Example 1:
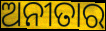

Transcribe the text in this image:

ଅନୀତାର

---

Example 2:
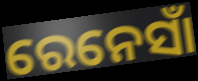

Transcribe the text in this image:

ରେନେସାଁ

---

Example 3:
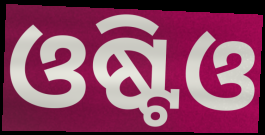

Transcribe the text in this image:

ଓଷ୍ଟିଓ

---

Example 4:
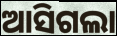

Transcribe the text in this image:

ଆସିଗଲା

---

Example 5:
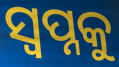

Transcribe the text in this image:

ସ୍ଵପ୍ନକୁ